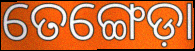
ତେଙ୍ଗେଡ଼ା